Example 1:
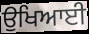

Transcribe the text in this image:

ਉਖਿਆਈ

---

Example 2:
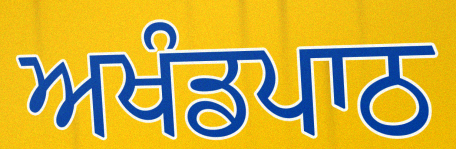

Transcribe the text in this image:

ਅਖੰਡਪਾਠ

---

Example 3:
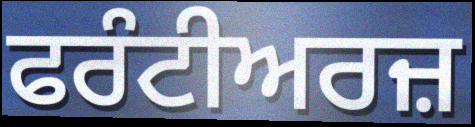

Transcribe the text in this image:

ਫਰੰਟੀਅਰਜ਼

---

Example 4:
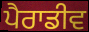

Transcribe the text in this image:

ਪੈਰਾਡੀਵ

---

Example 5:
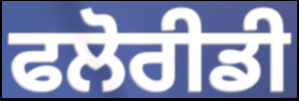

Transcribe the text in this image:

ਫਲੋਰੀਡੀ